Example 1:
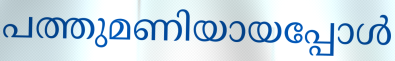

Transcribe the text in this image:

പത്തുമണിയായപ്പോൾ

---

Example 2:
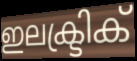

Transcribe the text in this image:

ഇലക്ട്രിക്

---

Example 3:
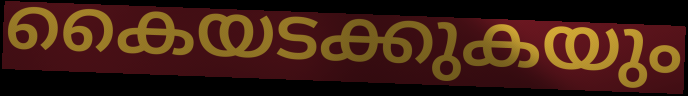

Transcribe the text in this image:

കൈയടക്കുകയും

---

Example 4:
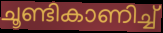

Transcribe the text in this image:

ചൂണ്ടികാണിച്ച്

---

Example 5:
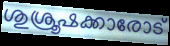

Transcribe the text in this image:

ശുശ്രൂഷക്കാരോട്